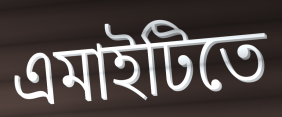
এমাইটিতে